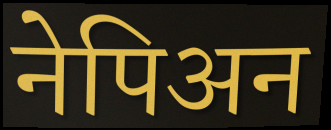
नेपिअन